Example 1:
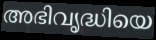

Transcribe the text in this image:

അഭിവൃദ്ധിയെ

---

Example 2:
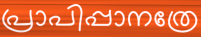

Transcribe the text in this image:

പ്രാപിപ്പാനത്രേ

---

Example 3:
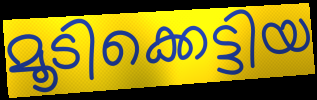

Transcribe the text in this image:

മൂടിക്കെട്ടിയ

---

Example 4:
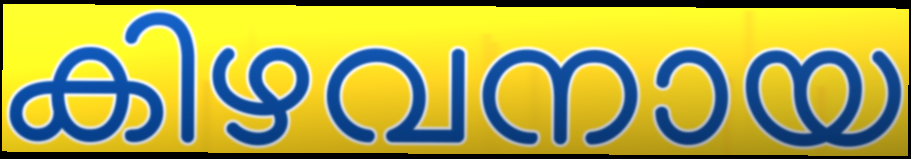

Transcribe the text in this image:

കിഴവനായ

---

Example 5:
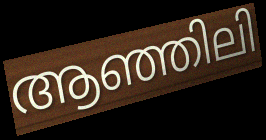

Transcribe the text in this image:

ആഞ്ഞിലി